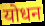
योधन